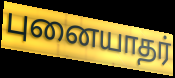
புனையாதர்